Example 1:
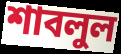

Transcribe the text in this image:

শাবলুল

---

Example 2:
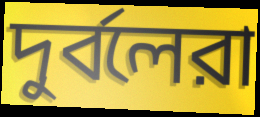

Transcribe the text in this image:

দুর্বলেরা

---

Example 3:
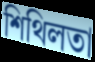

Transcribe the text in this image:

শিথিলতা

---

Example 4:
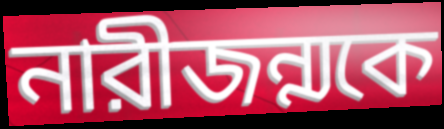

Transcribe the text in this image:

নারীজন্মকে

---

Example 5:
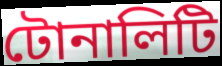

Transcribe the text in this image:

টোনালিটি